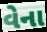
વેના